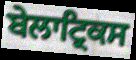
ਬੇਲਾਟ੍ਰਿਕਸ